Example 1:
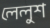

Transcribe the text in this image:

লেলুশ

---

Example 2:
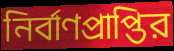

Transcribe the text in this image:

নির্বাণপ্রাপ্তির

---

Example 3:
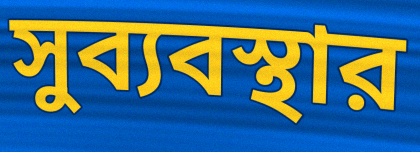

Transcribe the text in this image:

সুব্যবস্থার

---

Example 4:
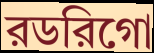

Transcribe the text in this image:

রডরিগো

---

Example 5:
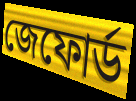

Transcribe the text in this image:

জেফোর্ড